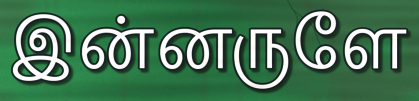
இன்னருளே